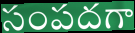
సంపదగా